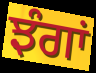
ਝੰਗਾਂ